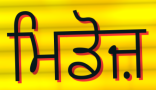
ਮਿਡੋਜ਼